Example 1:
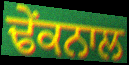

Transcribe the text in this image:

ਢੇਂਕਨਾਲ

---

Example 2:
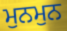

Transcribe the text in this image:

ਮੁਨਮੁਨ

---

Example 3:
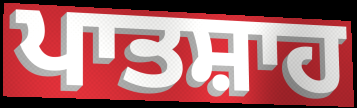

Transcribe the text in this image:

ਪਾਤਸ਼ਾਹ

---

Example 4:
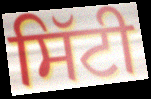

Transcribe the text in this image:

ਸਿੱਟੀ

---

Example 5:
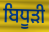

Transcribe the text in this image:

ਬਿਧੂੜੀ